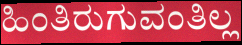
ಹಿಂತಿರುಗುವಂತಿಲ್ಲ